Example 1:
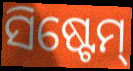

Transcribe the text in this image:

ସିଷ୍ଟେମ୍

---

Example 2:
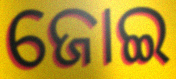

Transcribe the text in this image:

ଜୋଇ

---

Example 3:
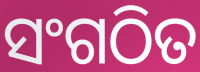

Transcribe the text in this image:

ସଂଗଠିତ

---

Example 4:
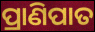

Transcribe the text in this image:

ପ୍ରାଣିପାତ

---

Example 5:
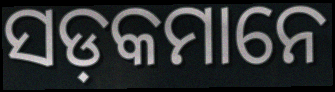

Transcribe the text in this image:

ସଡ଼କମାନେ